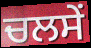
ਚਲਸੇਂ